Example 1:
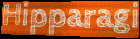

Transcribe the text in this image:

Hipparagi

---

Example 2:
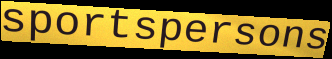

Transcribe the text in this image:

sportspersons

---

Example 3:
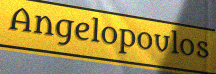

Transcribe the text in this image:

Angelopoulos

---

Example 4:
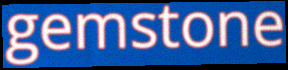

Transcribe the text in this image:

gemstone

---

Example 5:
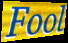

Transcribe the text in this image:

Fool